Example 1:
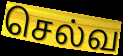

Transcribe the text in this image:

செல்வ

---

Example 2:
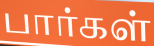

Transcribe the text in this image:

பார்கள்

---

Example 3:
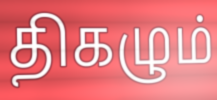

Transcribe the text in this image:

திகழும்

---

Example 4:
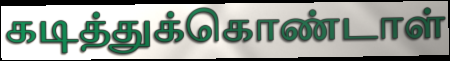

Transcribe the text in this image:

கடித்துக்கொண்டாள்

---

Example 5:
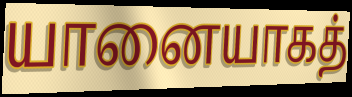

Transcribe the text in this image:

யானையாகத்